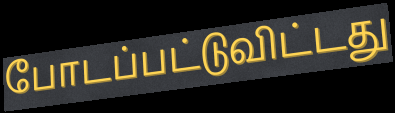
போடப்பட்டுவிட்டது